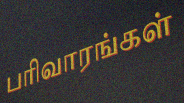
பரிவாரங்கள்